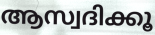
ആസ്വദിക്കൂ